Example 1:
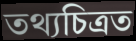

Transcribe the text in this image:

তথ্যচিত্ৰত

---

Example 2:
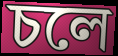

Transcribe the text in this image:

চলে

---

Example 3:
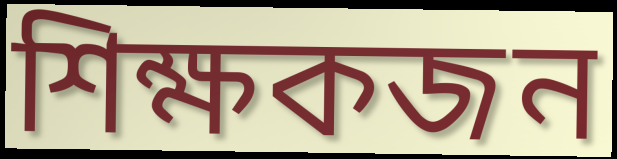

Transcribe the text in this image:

শিক্ষকজন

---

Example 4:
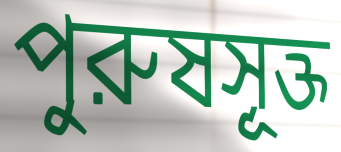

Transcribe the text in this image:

পুৰুষসূক্ত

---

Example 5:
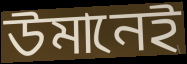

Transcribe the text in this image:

উমানেই